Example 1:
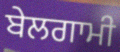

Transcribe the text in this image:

ਬੇਲਗਾਮੀ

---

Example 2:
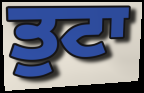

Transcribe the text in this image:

ਤੁਟਾ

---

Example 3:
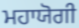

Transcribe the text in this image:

ਮਹਾਯੋਗੀ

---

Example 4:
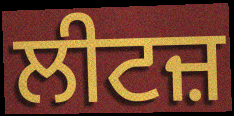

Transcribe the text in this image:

ਲੀਟਜ਼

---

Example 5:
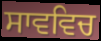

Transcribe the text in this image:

ਸਾਵਵਿਚ